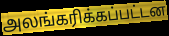
அலங்கரிக்கப்பட்டன